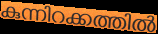
കുന്നിറക്കത്തിൽ